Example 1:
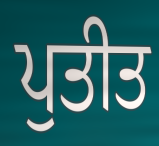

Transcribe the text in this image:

ਪੁਤੀਤ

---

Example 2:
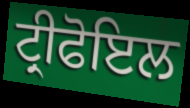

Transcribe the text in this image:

ਟ੍ਰੀਫੋਇਲ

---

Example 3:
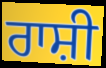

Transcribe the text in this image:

ਰਾਸ਼ੀ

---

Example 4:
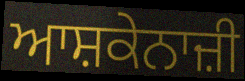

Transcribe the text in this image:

ਆਸ਼ਕੇਨਾਜ਼ੀ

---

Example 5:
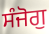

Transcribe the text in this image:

ਸੰਜੋਗੁ